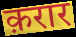
क़रार